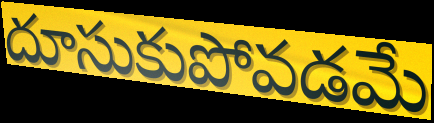
దూసుకుపోవడమే